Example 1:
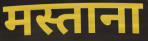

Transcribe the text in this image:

मस्ताना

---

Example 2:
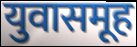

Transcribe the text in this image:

युवासमूह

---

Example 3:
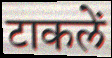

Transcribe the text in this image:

टाकलें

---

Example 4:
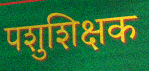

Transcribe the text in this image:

पशुशिक्षक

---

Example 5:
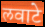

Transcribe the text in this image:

लवाटे